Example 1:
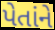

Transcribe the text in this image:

પેતાંને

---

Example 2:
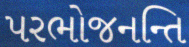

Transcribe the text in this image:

પરભોજનન્તિ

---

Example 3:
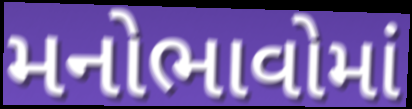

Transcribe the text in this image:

મનોભાવોમાં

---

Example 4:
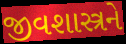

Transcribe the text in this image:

જીવશાસ્ત્રને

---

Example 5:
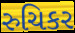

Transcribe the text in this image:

રુચિકર